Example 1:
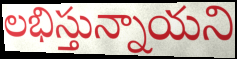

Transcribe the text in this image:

లభిస్తున్నాయని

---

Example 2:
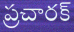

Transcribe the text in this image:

ప్రచారక్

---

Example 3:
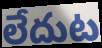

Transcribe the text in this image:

లేదుట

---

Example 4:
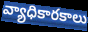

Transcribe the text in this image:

వ్యాధికారకాలు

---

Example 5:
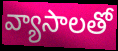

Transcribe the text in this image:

వ్యాసాలతో